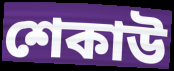
শেকাউ